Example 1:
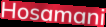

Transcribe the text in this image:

Hosamani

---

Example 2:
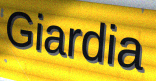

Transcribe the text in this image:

Giardia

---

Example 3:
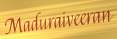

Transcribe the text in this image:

Maduraiveeran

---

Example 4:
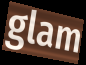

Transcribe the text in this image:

glam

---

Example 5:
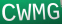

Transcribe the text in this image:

CWMG